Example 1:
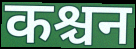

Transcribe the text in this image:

कश्चन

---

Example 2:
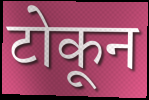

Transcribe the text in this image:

टोकून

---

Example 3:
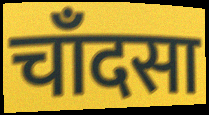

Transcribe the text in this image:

चाँदसा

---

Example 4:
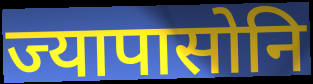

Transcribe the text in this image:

ज्यापासोनि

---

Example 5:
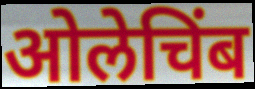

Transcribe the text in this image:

ओलेचिंब